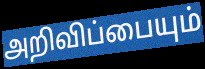
அறிவிப்பையும்